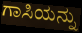
ಗಾಸಿಯನ್ನು